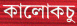
কালোকচু